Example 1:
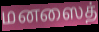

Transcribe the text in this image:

மனஸைத்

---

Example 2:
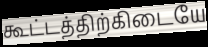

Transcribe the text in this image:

கூட்டத்திற்கிடையே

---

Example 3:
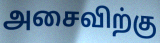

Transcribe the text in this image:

அசைவிற்கு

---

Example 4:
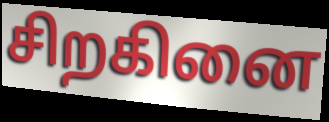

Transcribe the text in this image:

சிறகினை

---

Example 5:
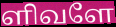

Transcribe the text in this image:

ளிவளே